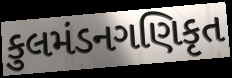
કુલમંડનગણિકૃત